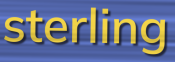
sterling